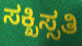
ಸಕ್ಖಿಸ್ಸತಿ